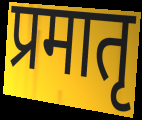
प्रमातृ